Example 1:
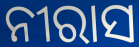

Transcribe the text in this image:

ନୀରାସ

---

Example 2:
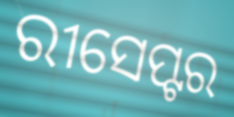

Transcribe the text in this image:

ରୀସେପ୍ଟର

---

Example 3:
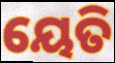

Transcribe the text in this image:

ୟେତି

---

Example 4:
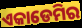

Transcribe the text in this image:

ଏକାଡେମିର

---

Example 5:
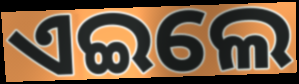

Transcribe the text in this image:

ଏଇଲେ